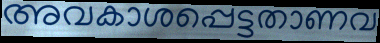
അവകാശപ്പെട്ടതാണവ